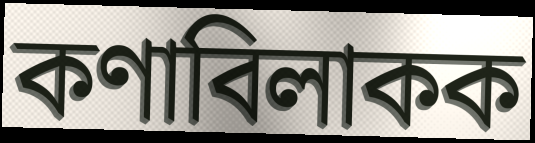
কণাবিলাকক